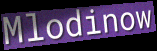
Mlodinow